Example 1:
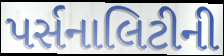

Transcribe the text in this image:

પર્સનાલિટીની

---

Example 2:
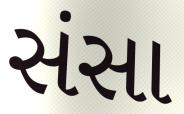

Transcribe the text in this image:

સંસા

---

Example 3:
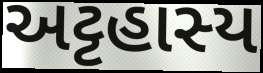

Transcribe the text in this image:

અટ્ટહાસ્ય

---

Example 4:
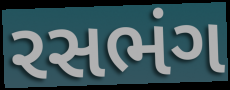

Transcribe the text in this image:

રસભંગ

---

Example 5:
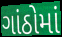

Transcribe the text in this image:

ગાંઠોમાં